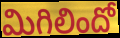
మిగిలిందో